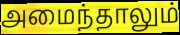
அமைந்தாலும்